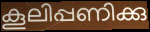
കൂലിപ്പണിക്കു